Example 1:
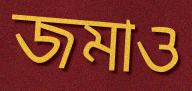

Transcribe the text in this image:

জমাও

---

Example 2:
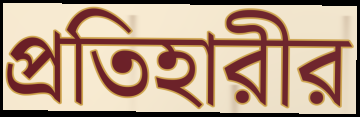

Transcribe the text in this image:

প্রতিহারীর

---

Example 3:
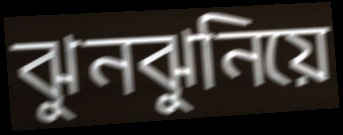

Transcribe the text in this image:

ঝুনঝুনিয়ে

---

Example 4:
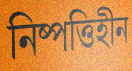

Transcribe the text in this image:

নিষ্পত্তিহীন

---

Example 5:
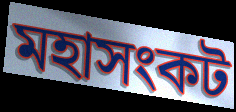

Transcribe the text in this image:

মহাসংকট